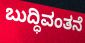
ಬುದ್ಧಿವಂತನೆ